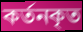
কর্তনকৃত